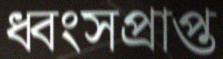
ধ্বংসপ্ৰাপ্ত